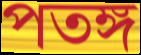
পতঙ্গ